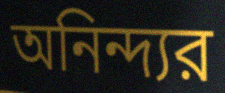
অনিন্দ্যর